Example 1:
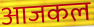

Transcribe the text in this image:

आजकल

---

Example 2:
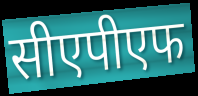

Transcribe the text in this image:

सीएपीएफ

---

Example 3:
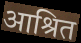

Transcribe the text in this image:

आश्रित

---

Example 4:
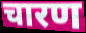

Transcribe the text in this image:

चारण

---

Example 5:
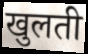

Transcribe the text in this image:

खुलती